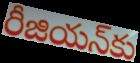
రీజియన్‌కు